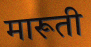
मारूती